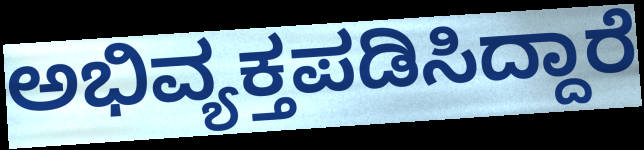
ಅಭಿವ್ಯಕ್ತಪಡಿಸಿದ್ದಾರೆ